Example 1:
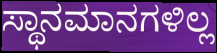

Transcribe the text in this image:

ಸ್ಥಾನಮಾನಗಳಿಲ್ಲ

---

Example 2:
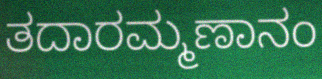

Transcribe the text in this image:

ತದಾರಮ್ಮಣಾನಂ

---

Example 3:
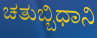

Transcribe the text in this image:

ಚತುಬ್ಬಿಧಾನಿ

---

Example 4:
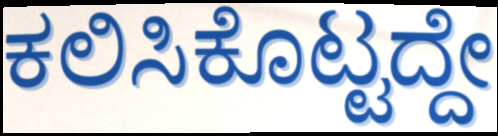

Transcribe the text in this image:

ಕಲಿಸಿಕೊಟ್ಟದ್ದೇ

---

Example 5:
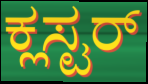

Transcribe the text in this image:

ಕ್ಲಸ್ಟರ್